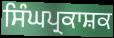
ਸਿੰਘਪ੍ਰਕਾਸ਼ਕ